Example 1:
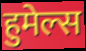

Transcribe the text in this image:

हुमेल्स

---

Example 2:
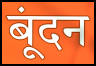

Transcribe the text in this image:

बूंदन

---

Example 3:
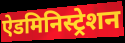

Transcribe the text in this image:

ऐडमिनिस्ट्रेशन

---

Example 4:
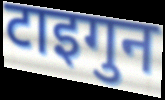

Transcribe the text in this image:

टाइगुन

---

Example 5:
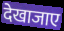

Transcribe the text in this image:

देखाजाए